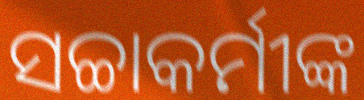
ସଚ୍ଚାକର୍ମୀଙ୍କ